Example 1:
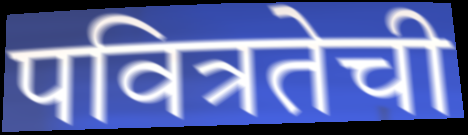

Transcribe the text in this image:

पवित्रतेची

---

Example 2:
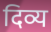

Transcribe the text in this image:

दिव्य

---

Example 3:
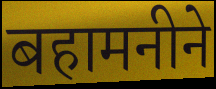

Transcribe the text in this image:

बहामनीने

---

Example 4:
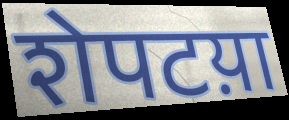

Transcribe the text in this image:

शेपटय़ा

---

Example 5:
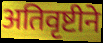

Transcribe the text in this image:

अतिवृष्टीने